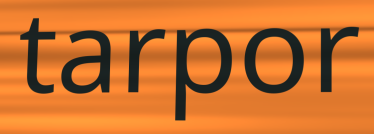
tarpor